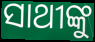
ସାଥୀଙ୍କୁ